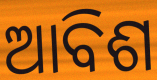
ଆବିଶ